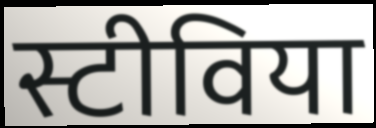
स्‍टीविया